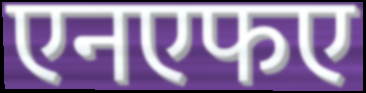
एनएफए